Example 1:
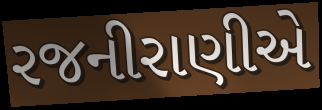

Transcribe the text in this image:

રજનીરાણીએ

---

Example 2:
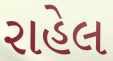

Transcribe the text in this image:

રાહેલ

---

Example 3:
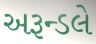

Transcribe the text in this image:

અરૂન્ડલે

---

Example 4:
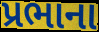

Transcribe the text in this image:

પ્રભાના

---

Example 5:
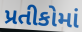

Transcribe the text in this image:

પ્રતીકોમાં